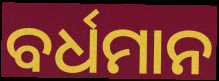
ବର୍ଧମାନ